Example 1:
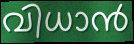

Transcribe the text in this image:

വിധാൻ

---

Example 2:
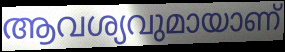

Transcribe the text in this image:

ആവശ്യവുമായാണ്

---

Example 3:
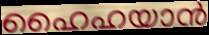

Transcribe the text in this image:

ഹൈഹയാൻ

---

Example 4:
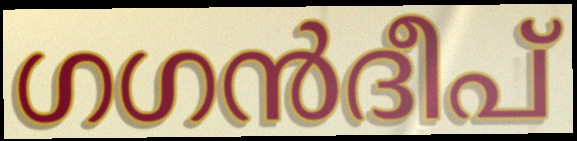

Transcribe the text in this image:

ഗഗൻദീപ്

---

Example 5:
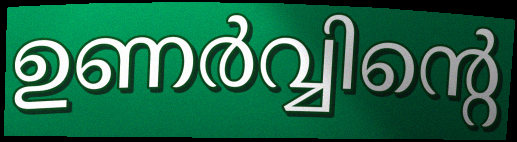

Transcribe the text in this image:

ഉണർവ്വിന്റെ